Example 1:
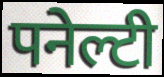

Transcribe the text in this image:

पनेल्टी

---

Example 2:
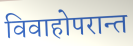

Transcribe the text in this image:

विवाहोपरान्त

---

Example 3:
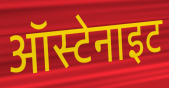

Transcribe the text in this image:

ऑस्टेनाइट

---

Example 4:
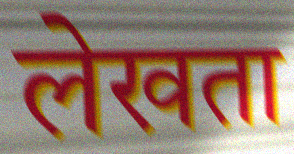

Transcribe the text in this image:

लेखता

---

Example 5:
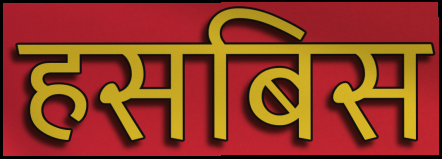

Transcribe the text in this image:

हसबिस